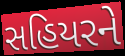
સહિયરને